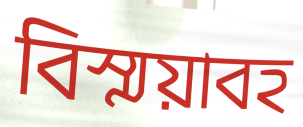
বিস্ময়াবহ